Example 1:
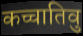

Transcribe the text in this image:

कच्चातिवु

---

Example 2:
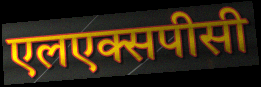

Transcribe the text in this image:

एलएक्सपीसी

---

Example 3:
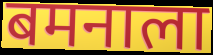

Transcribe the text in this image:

बमनाला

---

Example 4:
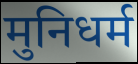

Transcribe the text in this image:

मुनिधर्म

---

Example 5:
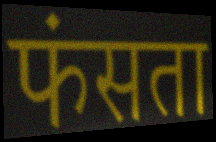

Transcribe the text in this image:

फंसता